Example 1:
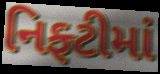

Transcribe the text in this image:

નિફ્ટીમાં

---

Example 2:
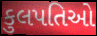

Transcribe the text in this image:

કુલપતિઓ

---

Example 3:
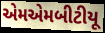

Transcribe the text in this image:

એમએમબીટીયૂ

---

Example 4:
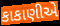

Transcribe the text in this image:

કાકાણીએ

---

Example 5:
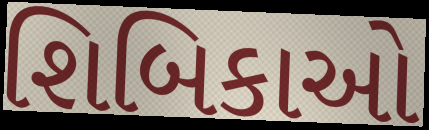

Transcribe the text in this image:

શિબિકાઓ